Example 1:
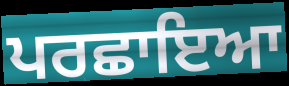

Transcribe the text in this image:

ਪਰਛਾਇਆ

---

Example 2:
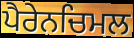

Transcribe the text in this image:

ਪੈਰੇਨਚਿਮਲ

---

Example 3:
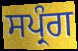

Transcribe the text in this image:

ਸਪ੍ਰੰਗ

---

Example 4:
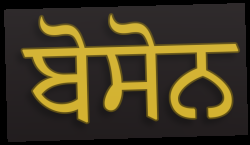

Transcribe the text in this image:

ਬੋਸੋਨ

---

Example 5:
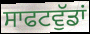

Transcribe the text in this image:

ਸਾਫਟਵੁੱਡਾਂ